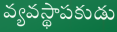
వ్యవస్థాపకుడు